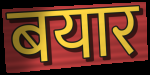
बयार